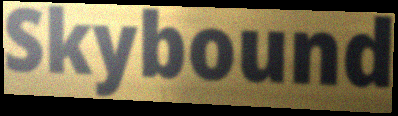
Skybound